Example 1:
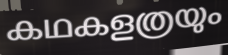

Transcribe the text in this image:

കഥകളത്രയും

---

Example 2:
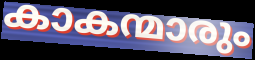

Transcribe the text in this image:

കാകന്മാരും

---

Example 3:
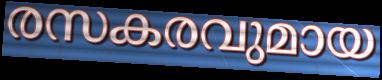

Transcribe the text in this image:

രസകരവുമായ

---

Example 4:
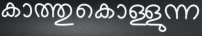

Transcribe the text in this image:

കാത്തുകൊള്ളുന്ന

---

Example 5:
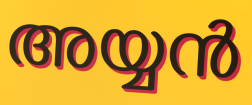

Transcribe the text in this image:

അയ്യൻ